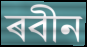
ৰবীন